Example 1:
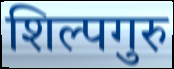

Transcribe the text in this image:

शिल्पगुरु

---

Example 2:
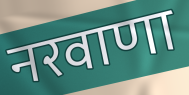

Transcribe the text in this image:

नरवाणा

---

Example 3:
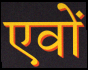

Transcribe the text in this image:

एवों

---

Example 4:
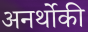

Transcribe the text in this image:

अनर्थोकी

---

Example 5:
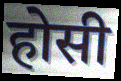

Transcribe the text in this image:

होसी